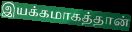
இயக்கமாகத்தான்